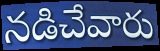
నడిచేవారు